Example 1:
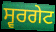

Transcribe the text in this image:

ਸ੍ਵਰਗੇਟ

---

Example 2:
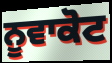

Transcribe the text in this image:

ਨੂਵਾਕੋਟ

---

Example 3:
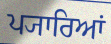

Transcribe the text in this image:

ਪ੍ਯਾਰਿਆਂ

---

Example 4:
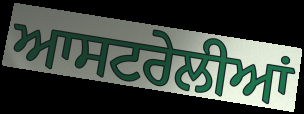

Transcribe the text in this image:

ਆਸਟਰੇਲੀਆਂ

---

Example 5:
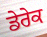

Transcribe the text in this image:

ਡੇਰੇਕ